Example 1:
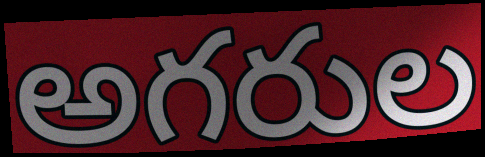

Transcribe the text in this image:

అగరుల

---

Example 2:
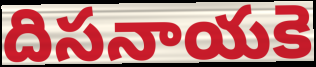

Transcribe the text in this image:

దిసనాయకె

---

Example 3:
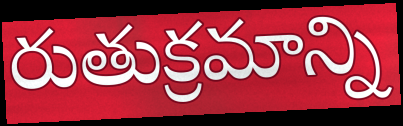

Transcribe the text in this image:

రుతుక్రమాన్ని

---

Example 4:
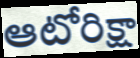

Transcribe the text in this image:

ఆటోరిక్షా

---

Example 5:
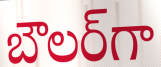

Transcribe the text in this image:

బౌలర్‌గా